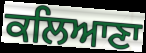
ਕਲਿਆਣਾ